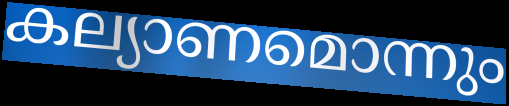
കല്യാണമൊന്നും